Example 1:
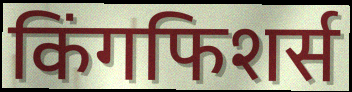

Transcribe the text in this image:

किंगफिशर्स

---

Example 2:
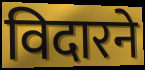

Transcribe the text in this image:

विदारने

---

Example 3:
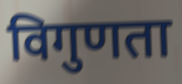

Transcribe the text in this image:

विगुणता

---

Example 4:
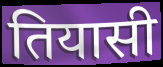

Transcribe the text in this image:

तियासी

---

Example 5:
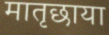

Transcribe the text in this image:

मातृछाया